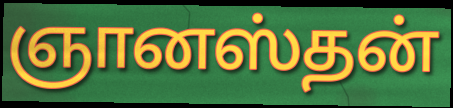
ஞானஸ்தன்